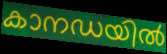
കാനഡയിൽ